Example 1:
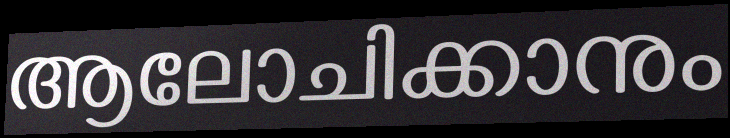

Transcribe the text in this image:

ആലോചിക്കാനും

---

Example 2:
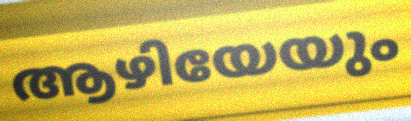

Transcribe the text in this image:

ആഴിയേയും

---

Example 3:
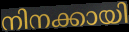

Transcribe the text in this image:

നിനക്കായി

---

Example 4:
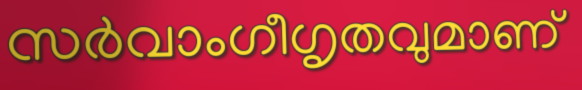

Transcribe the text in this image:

സർവാംഗീഗൃതവുമാണ്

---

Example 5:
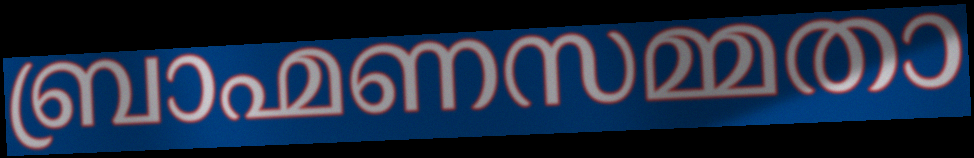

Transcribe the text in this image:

ബ്രാഹ്മണസമ്മതാ